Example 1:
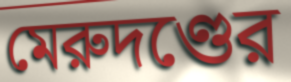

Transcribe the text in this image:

মেরুদণ্ডের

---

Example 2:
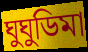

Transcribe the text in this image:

ঘুঘুডিমা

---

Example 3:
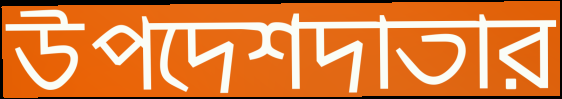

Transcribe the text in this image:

উপদেশদাতার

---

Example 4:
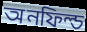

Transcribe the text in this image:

অনফিল্ড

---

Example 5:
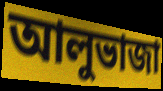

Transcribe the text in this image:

আলুভাজা